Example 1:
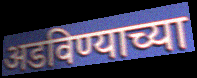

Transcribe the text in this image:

अडविण्याच्या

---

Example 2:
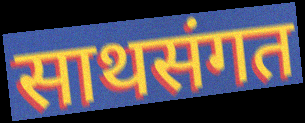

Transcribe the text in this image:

साथसंगत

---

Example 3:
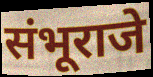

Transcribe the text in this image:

संभूराजे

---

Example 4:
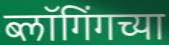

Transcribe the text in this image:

ब्लॉगिंगच्या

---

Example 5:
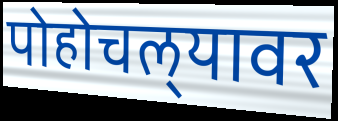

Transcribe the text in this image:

पोहोचल्यावर